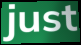
just